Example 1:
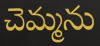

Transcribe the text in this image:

చెమ్మను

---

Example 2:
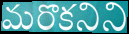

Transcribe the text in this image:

మరొకనిని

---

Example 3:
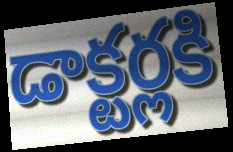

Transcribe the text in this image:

డాక్టర్లకి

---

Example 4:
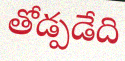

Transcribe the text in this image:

తోడ్పడేది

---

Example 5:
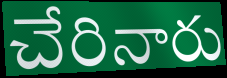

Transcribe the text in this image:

చేరినారు